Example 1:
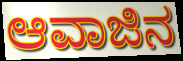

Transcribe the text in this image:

ಆವಾಜಿನ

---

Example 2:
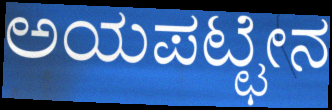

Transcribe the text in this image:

ಅಯಪಟ್ಟೇನ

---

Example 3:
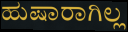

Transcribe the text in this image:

ಹುಷಾರಾಗಿಲ್ಲ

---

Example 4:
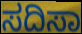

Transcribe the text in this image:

ಸದಿಸಾ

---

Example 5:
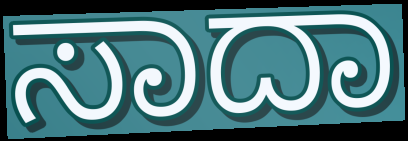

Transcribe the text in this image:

ಸಾದಾ